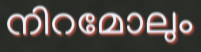
നിറമോലും